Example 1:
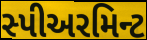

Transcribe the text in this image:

સ્પીઅરમિન્ટ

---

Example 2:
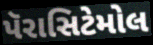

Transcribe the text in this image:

પૅરાસિટેમોલ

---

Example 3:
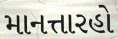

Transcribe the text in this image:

માનત્તારહો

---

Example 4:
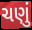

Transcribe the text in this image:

ચણું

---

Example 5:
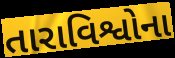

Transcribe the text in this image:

તારાવિશ્વોના